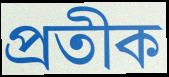
প্রতীক